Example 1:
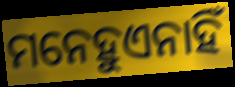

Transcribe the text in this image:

ମନେହୁଏନାହିଁ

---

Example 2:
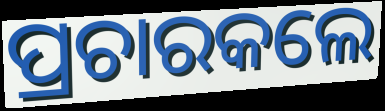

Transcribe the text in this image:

ପ୍ରଚାରକଲେ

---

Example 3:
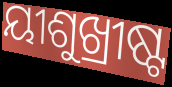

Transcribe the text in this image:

ୟୀଶୁଖ୍ରୀଷ୍ଟ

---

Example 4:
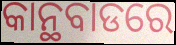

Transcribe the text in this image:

କାନ୍ଥବାଡରେ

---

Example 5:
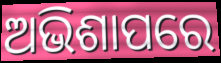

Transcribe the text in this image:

ଅଭିଶାପରେ